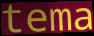
tema